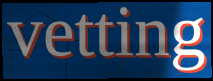
vetting